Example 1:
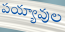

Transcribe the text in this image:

పయ్యావుల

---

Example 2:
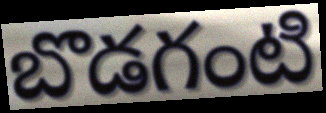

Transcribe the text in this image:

బొడగంటి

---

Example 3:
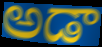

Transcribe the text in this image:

అడా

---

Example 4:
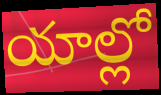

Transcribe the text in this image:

యాల్లో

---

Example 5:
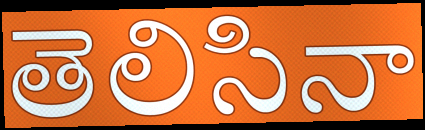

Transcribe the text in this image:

తెలిసినా